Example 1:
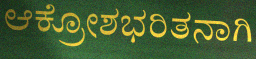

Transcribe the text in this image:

ಆಕ್ರೋಶಭರಿತನಾಗಿ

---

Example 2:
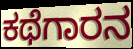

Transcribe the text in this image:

ಕಥೆಗಾರನ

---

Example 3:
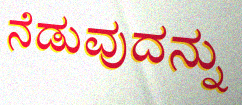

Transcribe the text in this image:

ನೆಡುವುದನ್ನು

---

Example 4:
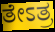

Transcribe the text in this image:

ತೇಽತ್ರ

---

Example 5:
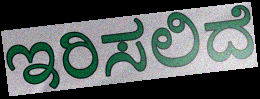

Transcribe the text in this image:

ಇರಿಸಲಿದೆ